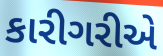
કારીગરીએ